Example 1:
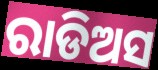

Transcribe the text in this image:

ରାଡିଅସ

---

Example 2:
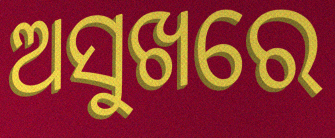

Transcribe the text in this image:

ଅସୁଖରେ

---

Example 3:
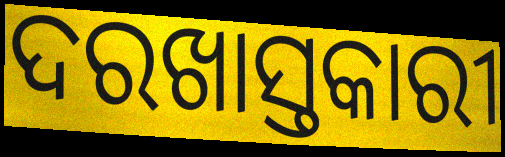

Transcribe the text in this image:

ଦରଖାସ୍ତକାରୀ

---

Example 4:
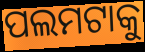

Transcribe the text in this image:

ପଲମଟାକୁ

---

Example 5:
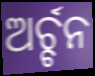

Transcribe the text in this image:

ଅର୍ଚ୍ଚନ